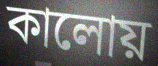
কালোয়